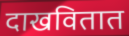
दाखवितात